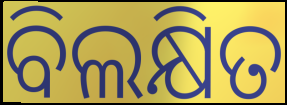
ବିଲକ୍ଷିତ